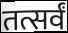
तत्सर्वं